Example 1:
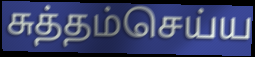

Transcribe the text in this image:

சுத்தம்செய்ய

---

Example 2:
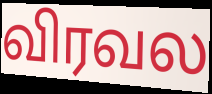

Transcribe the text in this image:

விரவல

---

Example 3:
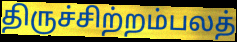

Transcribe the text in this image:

திருச்சிற்றம்பலத்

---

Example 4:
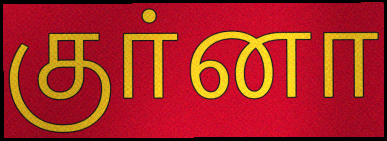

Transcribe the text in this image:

குர்னா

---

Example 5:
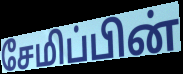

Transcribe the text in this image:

சேமிப்பின்